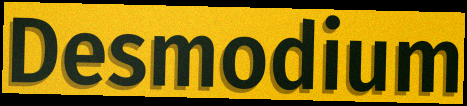
Desmodium